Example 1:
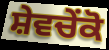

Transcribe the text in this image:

ਸ਼ੇਵਚੇਂਕੋ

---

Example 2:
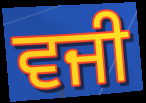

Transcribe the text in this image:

ਵਜੀ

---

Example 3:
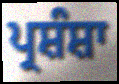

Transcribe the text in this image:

ਪ੍ਰਸ਼ੰਸ਼ਾ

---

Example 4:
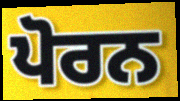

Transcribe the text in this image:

ਪੋਰਨ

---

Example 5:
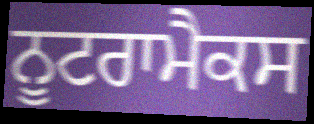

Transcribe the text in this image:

ਨੂਟਰਾਮੈਕਸ